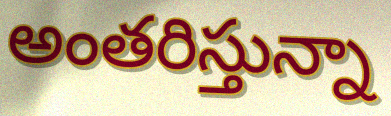
అంతరిస్తున్నా